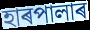
হাৰপালাৰ